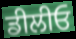
ਡੀਲੀਓ